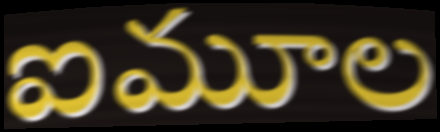
ఐమూల